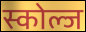
स्कोल्ज